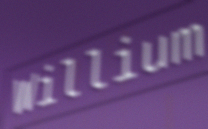
Willium